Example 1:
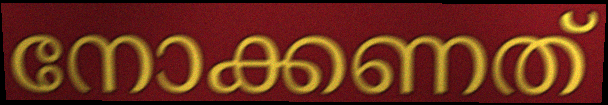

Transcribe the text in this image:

നോക്കണത്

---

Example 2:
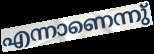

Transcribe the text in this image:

എന്നാണെന്നു്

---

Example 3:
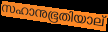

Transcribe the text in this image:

സഹാനുഭൂതിയാല്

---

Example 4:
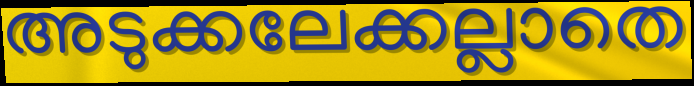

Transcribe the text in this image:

അടുക്കലേക്കല്ലാതെ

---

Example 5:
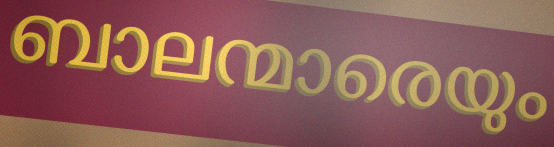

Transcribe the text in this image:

ബാലന്മാരെയും